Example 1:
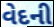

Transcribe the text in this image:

વેદની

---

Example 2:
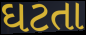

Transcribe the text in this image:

ઘટતા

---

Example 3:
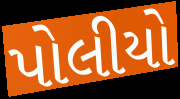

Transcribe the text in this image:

પોલીયો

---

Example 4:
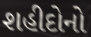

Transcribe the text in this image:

શહીદોનો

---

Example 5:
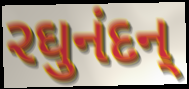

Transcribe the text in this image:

રઘુનંદન્